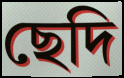
ছেদি